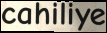
cahiliye